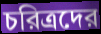
চরিত্রদের